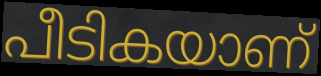
പീടികയാണ്